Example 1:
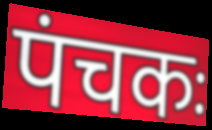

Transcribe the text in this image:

पंचकः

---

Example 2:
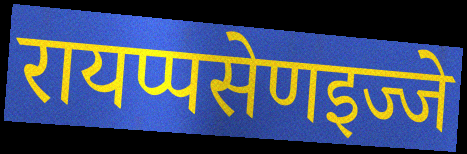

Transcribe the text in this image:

रायप्पसेणइज्जे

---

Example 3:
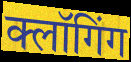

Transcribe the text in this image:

क्लॉगिंग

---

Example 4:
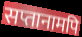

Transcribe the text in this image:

सप्तानामपि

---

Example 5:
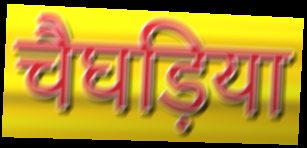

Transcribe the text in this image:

चैघड़िया